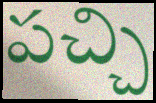
పచ్చి